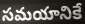
సమయానికే